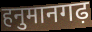
हनुमानगढ़